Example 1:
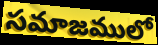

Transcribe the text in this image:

సమాజములో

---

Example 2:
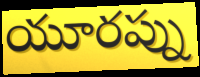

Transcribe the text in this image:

యూరప్ను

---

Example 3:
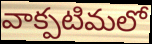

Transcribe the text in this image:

వాక్పటిమలో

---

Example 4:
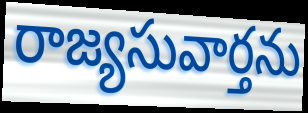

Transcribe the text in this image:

రాజ్యసువార్తను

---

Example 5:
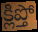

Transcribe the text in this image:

క్లిప్తో